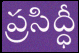
ప్రసిద్ధీ